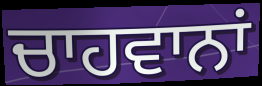
ਚਾਹਵਾਨਾਂ